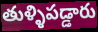
తుళ్ళిపడ్డారు